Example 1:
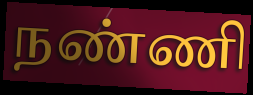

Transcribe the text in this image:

நண்ணி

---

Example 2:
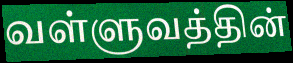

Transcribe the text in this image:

வள்ளுவத்தின்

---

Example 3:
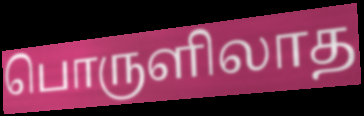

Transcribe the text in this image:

பொருளிலாத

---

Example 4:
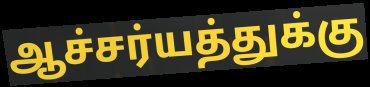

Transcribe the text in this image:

ஆச்சர்யத்துக்கு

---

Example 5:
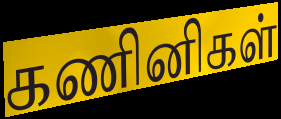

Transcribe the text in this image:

கணினிகள்